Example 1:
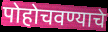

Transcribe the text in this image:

पोहोचवण्याचे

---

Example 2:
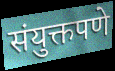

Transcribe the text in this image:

संयुक्तपणे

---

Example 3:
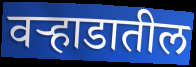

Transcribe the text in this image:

वऱ्हाडातील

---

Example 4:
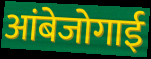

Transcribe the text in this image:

आंबेजोगाई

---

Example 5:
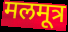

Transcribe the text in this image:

मलमूत्र